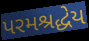
પરમશ્રદ્ધેય